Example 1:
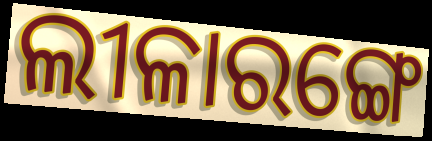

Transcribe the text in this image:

ଲୀଳାରଙ୍ଗେ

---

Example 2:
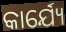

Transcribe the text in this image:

କାର୍ଯ୍ୟେ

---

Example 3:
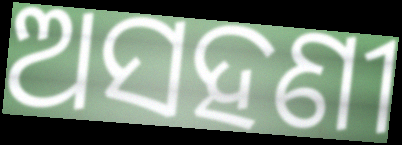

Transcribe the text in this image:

ଅସହଣୀ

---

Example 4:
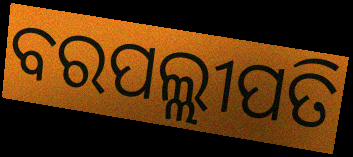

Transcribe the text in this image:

ବରପଲ୍ଲୀପତି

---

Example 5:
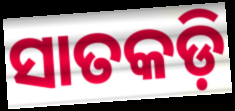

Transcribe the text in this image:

ସାତକଡ଼ି